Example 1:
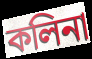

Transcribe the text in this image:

কলিনা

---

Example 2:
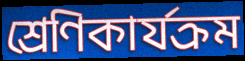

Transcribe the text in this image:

শ্রেণিকার্যক্রম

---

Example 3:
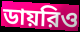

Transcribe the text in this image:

ডায়রিও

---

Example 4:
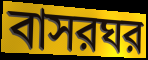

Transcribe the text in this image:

বাসরঘর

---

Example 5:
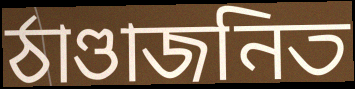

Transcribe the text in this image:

ঠাণ্ডাজনিত